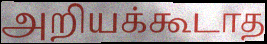
அறியக்கூடாத